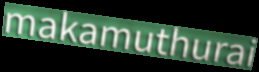
makamuthurai